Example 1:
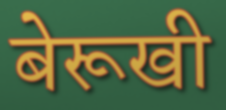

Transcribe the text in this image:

बेरूखी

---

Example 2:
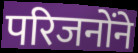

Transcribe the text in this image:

परिजनोंने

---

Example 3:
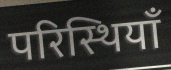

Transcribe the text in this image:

परिस्थियाँ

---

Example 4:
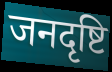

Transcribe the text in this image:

जनदृष्टि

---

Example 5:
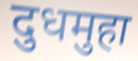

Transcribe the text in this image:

दुधमुहा